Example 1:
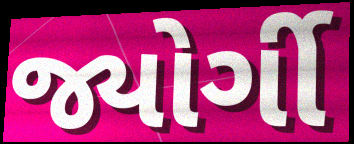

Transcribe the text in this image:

જ્યોર્ગી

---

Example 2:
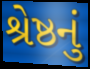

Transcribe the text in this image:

શ્રેષ્ઠનું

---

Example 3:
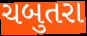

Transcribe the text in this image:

ચબુતરા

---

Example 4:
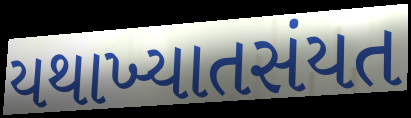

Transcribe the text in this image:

યથાખ્યાતસંયત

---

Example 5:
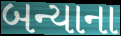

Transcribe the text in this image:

બન્યાના